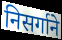
निसर्गाने